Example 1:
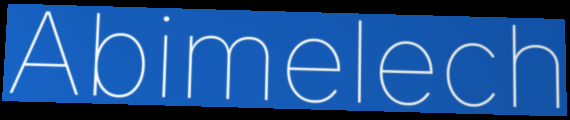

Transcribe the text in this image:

Abimelech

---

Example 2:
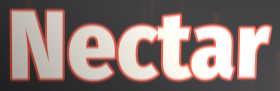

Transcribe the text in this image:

Nectar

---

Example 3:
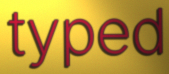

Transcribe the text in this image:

typed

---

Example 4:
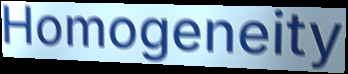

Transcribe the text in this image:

Homogeneity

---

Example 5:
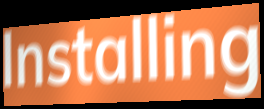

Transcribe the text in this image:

Installing